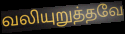
வலியுறுத்தவே